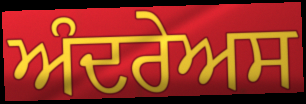
ਅੰਦਰੇਅਸ